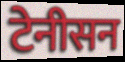
टेनीसन